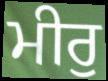
ਮੀਰੁ